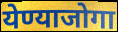
येण्याजोगा